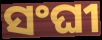
ସଂଘୀ